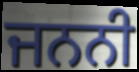
ਜਨਨੀ